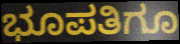
ಭೂಪತಿಗೂ